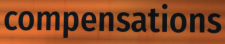
compensations